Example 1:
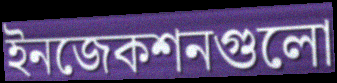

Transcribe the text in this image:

ইনজেকশনগুলো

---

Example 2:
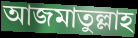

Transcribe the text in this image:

আজমাতুল্লাহ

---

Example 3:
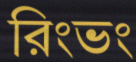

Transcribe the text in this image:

রিংভং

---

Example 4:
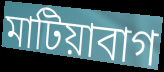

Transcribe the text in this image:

মাটিয়াবাগ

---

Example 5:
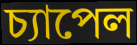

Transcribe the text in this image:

চ্যাপেল